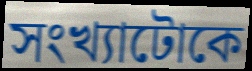
সংখ্যাটোকে